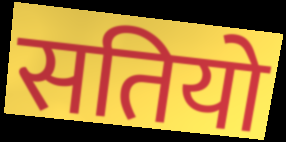
सतियो